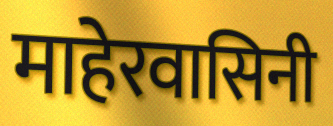
माहेरवासिनी